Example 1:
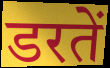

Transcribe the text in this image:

डरतें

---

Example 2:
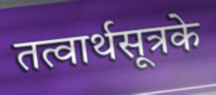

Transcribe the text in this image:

तत्वार्थसूत्रके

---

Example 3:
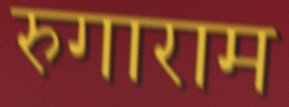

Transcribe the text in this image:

रुगाराम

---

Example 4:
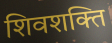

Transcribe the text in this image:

शिवशक्ति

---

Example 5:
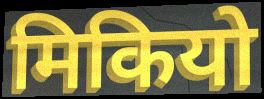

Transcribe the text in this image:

मिकियो